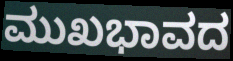
ಮುಖಭಾವದ